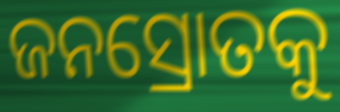
ଜନସ୍ରୋତକୁ